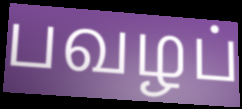
பவழப்